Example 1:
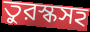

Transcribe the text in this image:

তুরস্কসহ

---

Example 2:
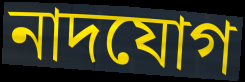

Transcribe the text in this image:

নাদযোগ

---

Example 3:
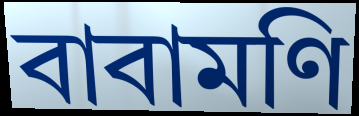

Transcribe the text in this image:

বাবামণি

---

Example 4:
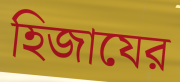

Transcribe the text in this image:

হিজাযের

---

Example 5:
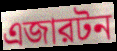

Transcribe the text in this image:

এজারটন